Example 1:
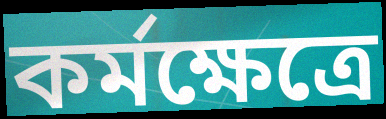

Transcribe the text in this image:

কর্মক্ষেত্রে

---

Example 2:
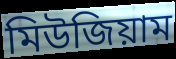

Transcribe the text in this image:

মিউজিয়াম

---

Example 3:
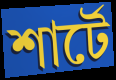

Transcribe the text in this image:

শার্টে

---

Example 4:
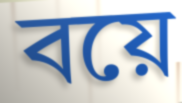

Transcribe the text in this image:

বয়ে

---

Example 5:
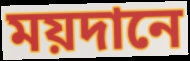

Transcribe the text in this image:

ময়দানে